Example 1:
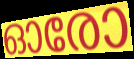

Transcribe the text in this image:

ഓരോ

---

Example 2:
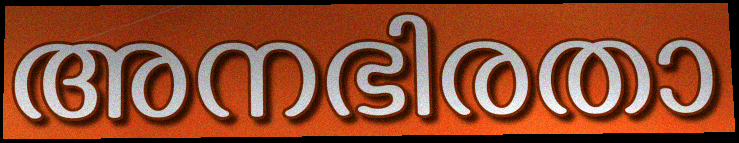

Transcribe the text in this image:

അനഭിരതാ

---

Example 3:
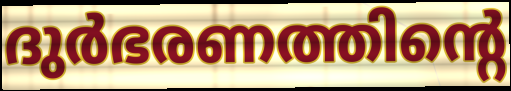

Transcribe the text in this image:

ദുർഭരണത്തിന്റെ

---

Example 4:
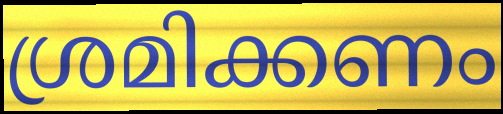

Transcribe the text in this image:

ശ്രമിക്കണം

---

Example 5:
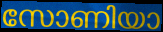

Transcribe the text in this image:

സോണിയാ